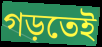
গড়তেই